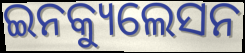
ଇନକ୍ୟୁଲେସନ